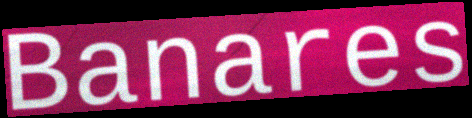
Banares